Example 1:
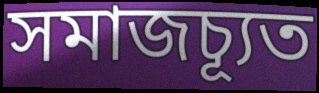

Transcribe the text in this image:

সমাজচ্যূত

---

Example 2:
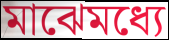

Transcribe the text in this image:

মাঝেমধ্যে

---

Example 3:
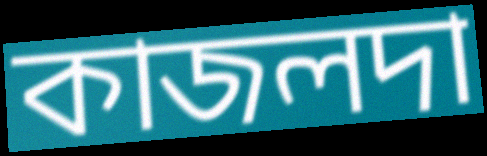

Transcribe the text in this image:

কাজলদা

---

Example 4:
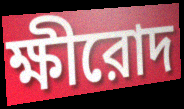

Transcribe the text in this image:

ক্ষীরোদ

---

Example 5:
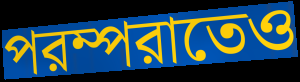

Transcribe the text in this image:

পরম্পরাতেও